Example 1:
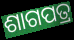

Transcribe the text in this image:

ଶାଗପତ୍ର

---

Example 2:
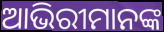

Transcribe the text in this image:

ଆଭିରୀମାନଙ୍କ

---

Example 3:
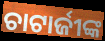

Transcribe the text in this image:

ଚାଟାର୍ଜୀଙ୍କ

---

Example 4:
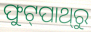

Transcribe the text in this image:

ଫୁଟ୍‌ପାଥ୍‌ରୁ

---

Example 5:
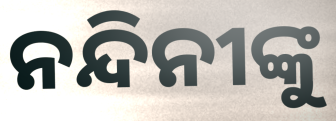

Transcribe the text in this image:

ନନ୍ଦିନୀଙ୍କୁ